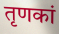
तृणकां